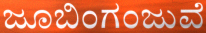
ಜೂಬಿಂಗಂಜುವೆ